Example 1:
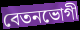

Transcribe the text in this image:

বেতনভোগী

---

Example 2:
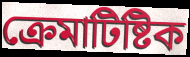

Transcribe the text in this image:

ক্রেমাটিষ্টিক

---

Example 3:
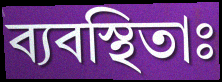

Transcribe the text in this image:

ব্যবস্থিতাঃ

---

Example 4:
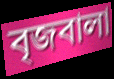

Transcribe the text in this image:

বৃজবালা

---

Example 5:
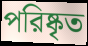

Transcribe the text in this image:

পরিষ্কৃত